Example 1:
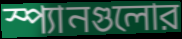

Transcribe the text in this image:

স্প্যানগুলোর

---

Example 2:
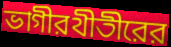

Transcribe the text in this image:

ভাগীরথীতীরের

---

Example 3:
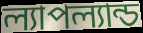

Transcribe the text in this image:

ল্যাপল্যান্ড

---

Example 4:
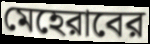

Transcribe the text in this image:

মেহেরাবের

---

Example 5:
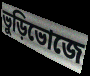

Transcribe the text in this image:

ভুড়িভোজে